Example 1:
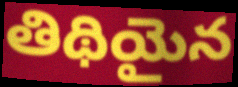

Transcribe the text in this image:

తిథియైన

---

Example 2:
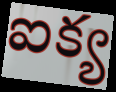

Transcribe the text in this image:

ఐక్య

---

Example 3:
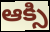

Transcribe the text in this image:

ఆక్సి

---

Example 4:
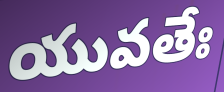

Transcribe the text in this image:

యువతేః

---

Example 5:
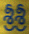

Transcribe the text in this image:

శ్రీశ్రీ